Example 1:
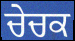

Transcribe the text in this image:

ਚੇਚਕ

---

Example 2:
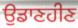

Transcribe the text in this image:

ਉਡਾਣਹੀਣ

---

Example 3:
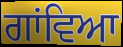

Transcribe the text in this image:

ਗਾਂਵਿਆ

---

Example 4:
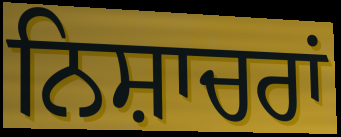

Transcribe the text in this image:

ਨਿਸ਼ਾਚਰਾਂ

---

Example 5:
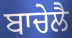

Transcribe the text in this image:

ਬਾਚੇਲੈ